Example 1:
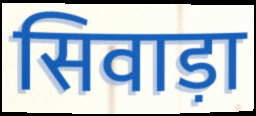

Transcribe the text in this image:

सिवाड़ा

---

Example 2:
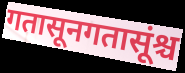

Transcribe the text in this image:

गतासूनगतासूंश्च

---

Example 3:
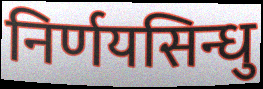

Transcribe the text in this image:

निर्णयसिन्धु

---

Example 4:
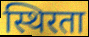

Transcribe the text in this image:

स्थिरता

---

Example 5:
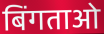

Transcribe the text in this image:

बिंगताओ